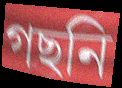
গছনি